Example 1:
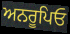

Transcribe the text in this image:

ਅਨਰੂਪਿਓ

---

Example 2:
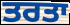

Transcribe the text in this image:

ਤਰਤਾ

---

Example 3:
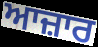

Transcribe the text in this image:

ਆਜ਼ਾਰ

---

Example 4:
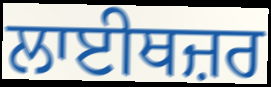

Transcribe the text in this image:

ਲਾਈਥਜ਼ਰ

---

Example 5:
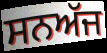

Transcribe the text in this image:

ਸਨਅੱਜ